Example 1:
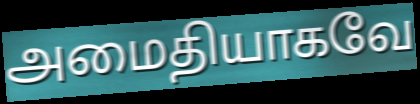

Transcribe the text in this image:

அமைதியாகவே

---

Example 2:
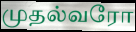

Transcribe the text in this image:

முதல்வரோ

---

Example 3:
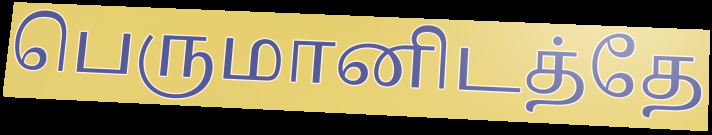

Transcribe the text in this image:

பெருமானிடத்தே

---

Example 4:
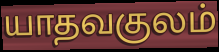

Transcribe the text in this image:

யாதவகுலம்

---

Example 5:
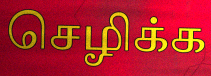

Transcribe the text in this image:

செழிக்க